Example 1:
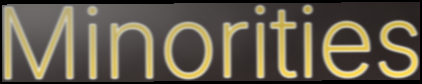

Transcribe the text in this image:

Minorities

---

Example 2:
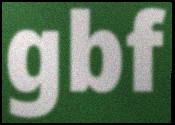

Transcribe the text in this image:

gbf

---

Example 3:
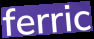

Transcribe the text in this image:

ferric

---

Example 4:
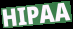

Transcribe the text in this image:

HIPAA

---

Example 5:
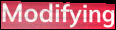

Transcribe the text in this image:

Modifying